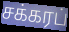
சக்கரப்